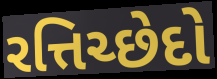
રત્તિચ્છેદો